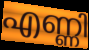
എണ്ണി